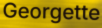
Georgette